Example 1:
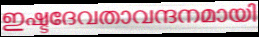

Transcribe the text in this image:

ഇഷ്ടദേവതാവന്ദനമായി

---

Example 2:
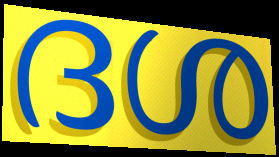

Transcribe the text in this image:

ദശ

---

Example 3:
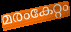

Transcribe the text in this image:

മരംകേറ്റം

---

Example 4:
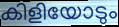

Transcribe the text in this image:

കിളിയോടും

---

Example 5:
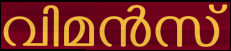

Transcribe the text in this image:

വിമൻസ്